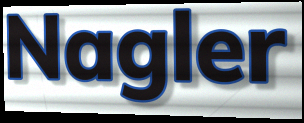
Nagler